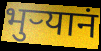
भुऱ्यानं